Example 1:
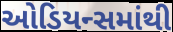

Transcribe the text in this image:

ઓડિયન્સમાંથી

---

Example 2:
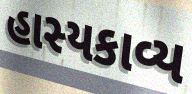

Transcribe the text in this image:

હાસ્યકાવ્ય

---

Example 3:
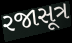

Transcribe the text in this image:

રજાસૂત્ર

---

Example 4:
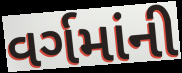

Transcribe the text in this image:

વર્ગમાંની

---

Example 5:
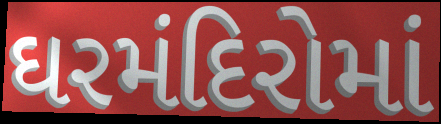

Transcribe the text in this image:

ઘરમંદિરોમાં